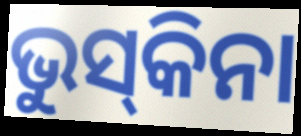
ଭୁସ୍‌କିନା